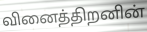
வினைத்திறனின்